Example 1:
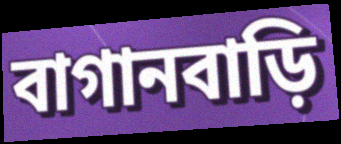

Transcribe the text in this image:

বাগানবাড়ি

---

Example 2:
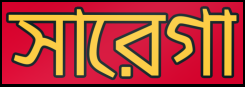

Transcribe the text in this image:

সারেগা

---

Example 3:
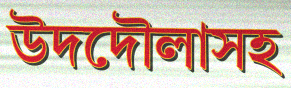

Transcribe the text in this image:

উদদৌলাসহ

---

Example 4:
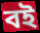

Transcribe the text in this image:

বই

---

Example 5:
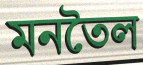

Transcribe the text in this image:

মনতৈল